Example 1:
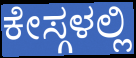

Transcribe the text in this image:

ಕೇಸ್ಗಳಲ್ಲಿ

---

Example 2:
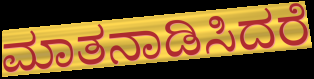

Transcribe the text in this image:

ಮಾತನಾಡಿಸಿದರೆ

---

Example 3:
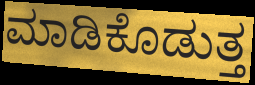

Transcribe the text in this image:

ಮಾಡಿಕೊಡುತ್ತ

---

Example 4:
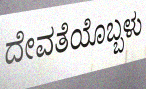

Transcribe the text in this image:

ದೇವತೆಯೊಬ್ಬಳು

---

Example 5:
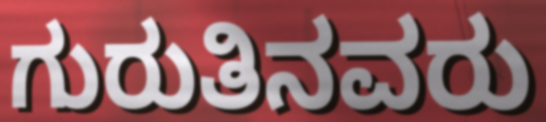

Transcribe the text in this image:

ಗುರುತಿನವರು